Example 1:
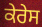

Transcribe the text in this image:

ਕੇਰੇਸ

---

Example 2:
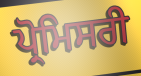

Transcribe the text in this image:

ਪ੍ਰੋਮਿਸਰੀ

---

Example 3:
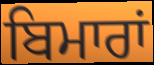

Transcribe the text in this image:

ਬਿਮਾਰਾਂ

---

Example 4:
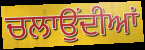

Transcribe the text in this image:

ਚਲਾਉਂਦੀਆਂ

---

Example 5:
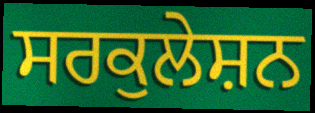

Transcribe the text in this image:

ਸਰਕੁਲੇਸ਼ਨ